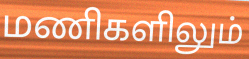
மணிகளிலும்